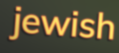
jewish